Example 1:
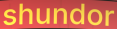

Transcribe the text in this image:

shundor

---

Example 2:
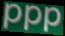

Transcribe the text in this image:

ppp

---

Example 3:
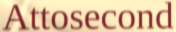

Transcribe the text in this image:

Attosecond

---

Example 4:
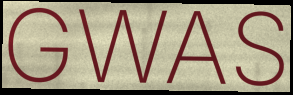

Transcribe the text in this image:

GWAS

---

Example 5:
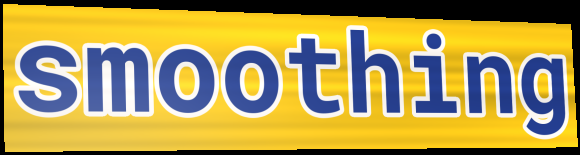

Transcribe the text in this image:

smoothing